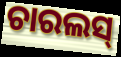
ଚାରଲସ୍